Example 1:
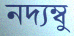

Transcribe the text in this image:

নদ্যম্বু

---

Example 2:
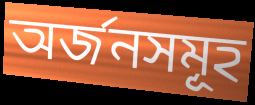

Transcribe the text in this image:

অর্জনসমূহ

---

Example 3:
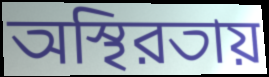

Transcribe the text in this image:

অস্থিরতায়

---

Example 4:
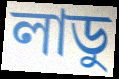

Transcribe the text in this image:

লাডু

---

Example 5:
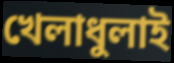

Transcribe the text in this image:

খেলাধুলাই